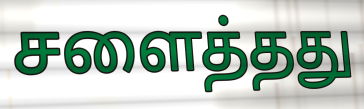
சளைத்தது